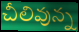
చీలివున్న